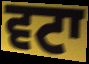
ਵਟਾ